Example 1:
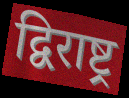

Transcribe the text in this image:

द्विराष्ट्र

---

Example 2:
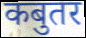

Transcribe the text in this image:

कबुतर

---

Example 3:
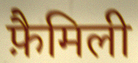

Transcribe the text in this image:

फ़ैमिली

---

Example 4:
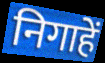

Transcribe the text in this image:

निगाहें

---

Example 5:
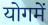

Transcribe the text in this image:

योगमें